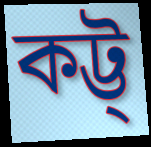
কট্ট্